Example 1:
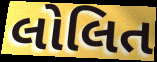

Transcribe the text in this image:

લોલિત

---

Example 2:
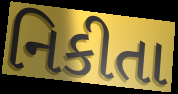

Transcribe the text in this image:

નિકીતા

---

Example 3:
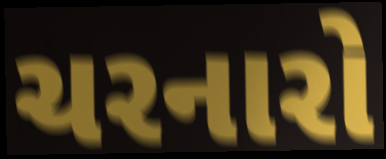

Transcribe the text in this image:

ચરનારો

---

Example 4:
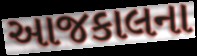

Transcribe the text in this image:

આજકાલના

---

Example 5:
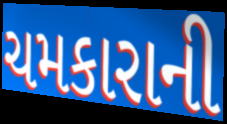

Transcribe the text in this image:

ચમકારાની